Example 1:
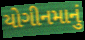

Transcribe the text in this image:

યોગીનમાનું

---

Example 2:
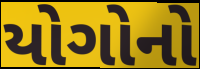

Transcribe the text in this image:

યોગોનો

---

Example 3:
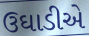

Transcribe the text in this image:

ઉઘાડીએ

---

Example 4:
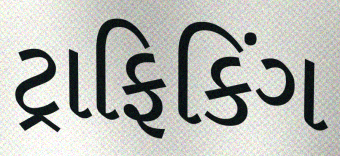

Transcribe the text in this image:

ટ્રાફિકિંગ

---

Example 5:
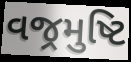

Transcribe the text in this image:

વજ્રમુષ્ટિ